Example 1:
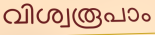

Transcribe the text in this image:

വിശ്വരൂപാം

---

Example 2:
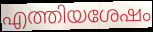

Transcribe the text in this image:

എത്തിയശേഷം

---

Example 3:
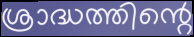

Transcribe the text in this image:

ശ്രാദ്ധത്തിന്റെ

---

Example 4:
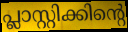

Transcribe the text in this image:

പ്ലാസ്റ്റിക്കിന്റെ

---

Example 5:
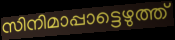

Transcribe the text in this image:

സിനിമാപ്പാട്ടെഴുത്ത്